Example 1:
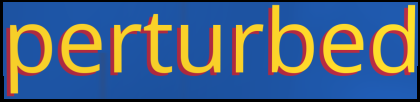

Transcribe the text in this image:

perturbed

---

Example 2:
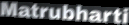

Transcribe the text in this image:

Matrubharti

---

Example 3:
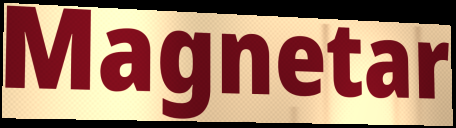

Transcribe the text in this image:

Magnetar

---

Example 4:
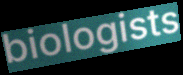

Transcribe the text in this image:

biologists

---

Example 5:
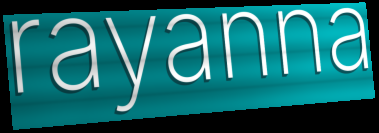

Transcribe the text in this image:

rayanna